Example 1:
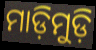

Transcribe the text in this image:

ମାଡ଼ିମୁଡ଼ି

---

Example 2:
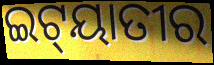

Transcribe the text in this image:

ଇଟ୍‍ୟାତୀର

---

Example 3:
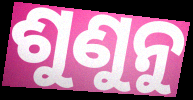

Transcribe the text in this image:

ଶୁଣୁନୁ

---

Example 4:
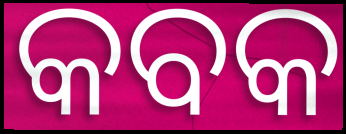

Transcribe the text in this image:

କବକ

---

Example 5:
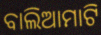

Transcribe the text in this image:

ବାଲିଆମାଟି